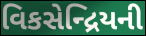
વિકસેન્દ્રિયની